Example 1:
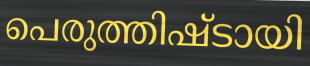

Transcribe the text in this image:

പെരുത്തിഷ്ടായി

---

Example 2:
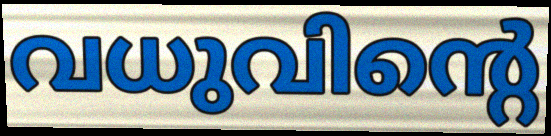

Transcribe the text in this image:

വധുവിന്റെ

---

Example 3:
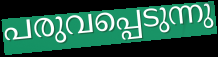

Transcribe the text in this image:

പരുവപ്പെടുന്നു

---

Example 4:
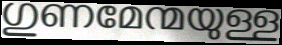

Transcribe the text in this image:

ഗുണമേന്മയുള്ള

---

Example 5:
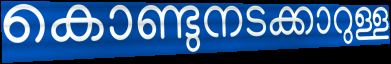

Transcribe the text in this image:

കൊണ്ടുനടക്കാറുള്ള